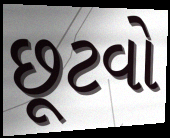
છૂટવો